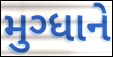
મુગ્ધાને